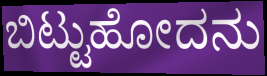
ಬಿಟ್ಟುಹೋದನು